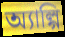
অ্যাল্গি